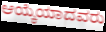
ಆಯ್ಕೆಯಾದವರು